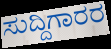
ಸುದ್ದಿಗಾರರ